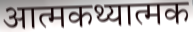
आत्मकथ्यात्मक